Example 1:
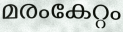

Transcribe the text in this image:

മരംകേറ്റം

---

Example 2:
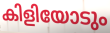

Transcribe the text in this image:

കിളിയോടും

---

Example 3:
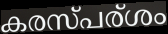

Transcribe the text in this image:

കരസ്പര്ശം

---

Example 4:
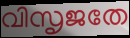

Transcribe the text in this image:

വിസൃജതേ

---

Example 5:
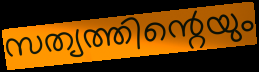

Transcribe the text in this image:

സത്യത്തിന്റെയും